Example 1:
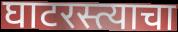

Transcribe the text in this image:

घाटरस्त्याचा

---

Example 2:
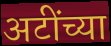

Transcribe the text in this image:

अटींच्या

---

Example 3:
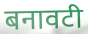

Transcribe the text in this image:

बनावटी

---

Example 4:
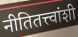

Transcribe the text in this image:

नीतितत्त्वांशी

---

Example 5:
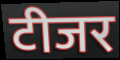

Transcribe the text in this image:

टीजर